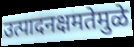
उत्पादनक्षमतेमुळे